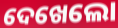
ଦେଖେଲୋ